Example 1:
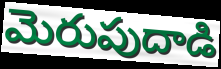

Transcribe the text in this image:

మెరుపుదాడి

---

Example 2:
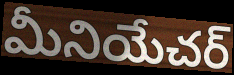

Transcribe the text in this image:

మీనియేచర్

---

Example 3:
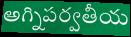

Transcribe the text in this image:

అగ్నిపర్వతీయ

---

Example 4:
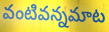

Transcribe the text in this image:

వంటివన్నమాట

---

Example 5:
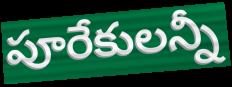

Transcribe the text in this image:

పూరేకులన్నీ